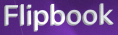
Flipbook